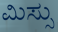
ಮಿಸ್ಸು